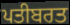
ਪਤੀਬਰਤ